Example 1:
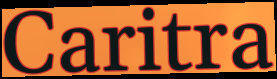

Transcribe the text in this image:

Caritra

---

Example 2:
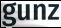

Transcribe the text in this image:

gunz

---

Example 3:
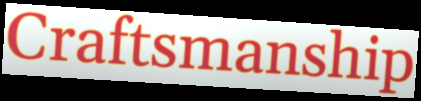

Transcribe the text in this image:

Craftsmanship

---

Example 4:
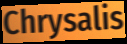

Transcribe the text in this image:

Chrysalis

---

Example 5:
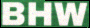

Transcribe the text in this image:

BHW